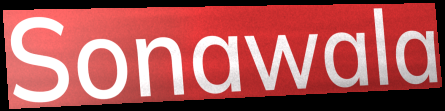
Sonawala